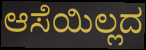
ಆಸೆಯಿಲ್ಲದ